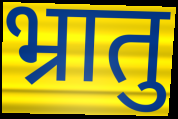
भ्रातु